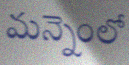
మన్నెంలో